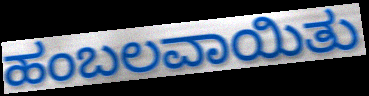
ಹಂಬಲವಾಯಿತು